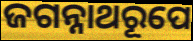
ଜଗନ୍ନାଥରୂପେ